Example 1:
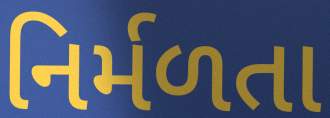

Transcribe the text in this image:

નિર્મળતા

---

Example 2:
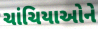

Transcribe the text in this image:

ચાંચિયાઓને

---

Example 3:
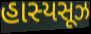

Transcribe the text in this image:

હાસ્યસૂઝ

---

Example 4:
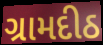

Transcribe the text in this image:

ગ્રામદીઠ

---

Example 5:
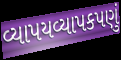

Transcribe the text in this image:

વ્યાપયવ્યાપકપણું